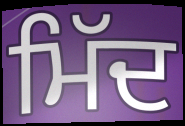
ਮਿੱਦ